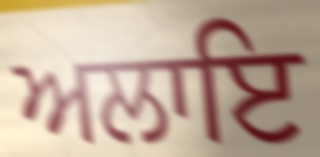
ਅਲਾਇ